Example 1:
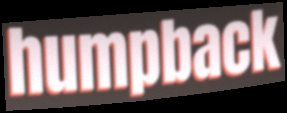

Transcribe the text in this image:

humpback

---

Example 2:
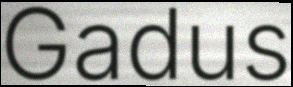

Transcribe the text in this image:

Gadus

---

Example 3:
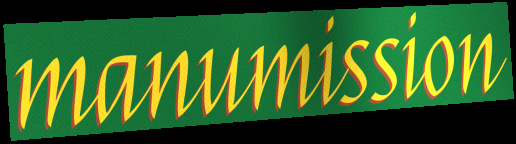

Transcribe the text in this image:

manumission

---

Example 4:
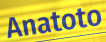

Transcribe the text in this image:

Anatoto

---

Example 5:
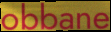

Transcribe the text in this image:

obbane